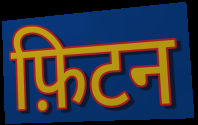
फ़िटन